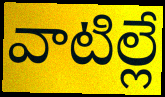
వాటిల్లే